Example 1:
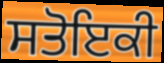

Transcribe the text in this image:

ਸਤੋਇਕੀ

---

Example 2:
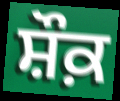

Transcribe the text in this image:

ਸ਼ੌਕ਼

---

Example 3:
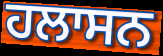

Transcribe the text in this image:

ਹਲਾਸਨ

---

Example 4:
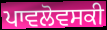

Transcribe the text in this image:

ਪਾਵਲੋਵਸਕੀ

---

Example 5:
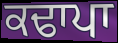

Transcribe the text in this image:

ਕਢਾਪਾ